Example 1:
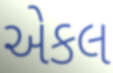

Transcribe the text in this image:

એકલ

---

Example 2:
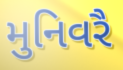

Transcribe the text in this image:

મુનિવરૈ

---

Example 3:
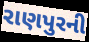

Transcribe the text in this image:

રાણપુરની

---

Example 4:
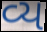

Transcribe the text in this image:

વ્ય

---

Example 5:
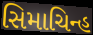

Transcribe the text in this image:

સિમાચિન્હ